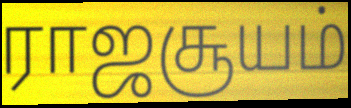
ராஜசூயம்